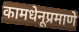
कामधेनूप्रमाणे